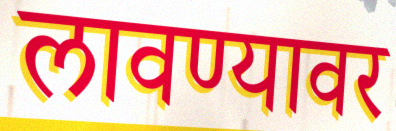
लावण्यावर